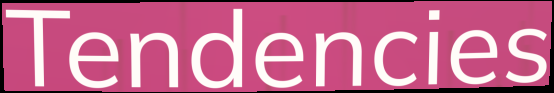
Tendencies